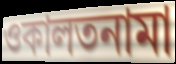
ওকালতনামা